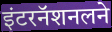
इंटरनॅशनलने